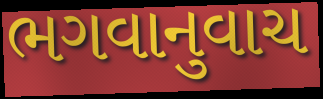
ભગવાનુવાચ